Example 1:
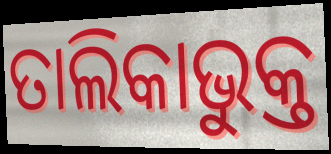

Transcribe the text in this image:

ତାଲିକାଭୁକ୍ତ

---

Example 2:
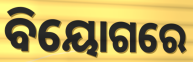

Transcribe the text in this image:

ବିୟୋଗରେ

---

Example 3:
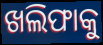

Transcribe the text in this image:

ଖଲିଫାକୁ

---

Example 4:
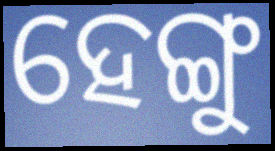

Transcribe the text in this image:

ହେଙ୍ଗୁ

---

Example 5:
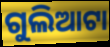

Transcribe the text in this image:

ଗୁଲିଆଟା